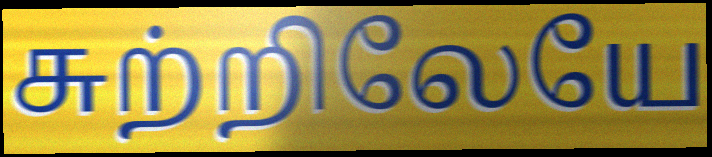
சுற்றிலேயே